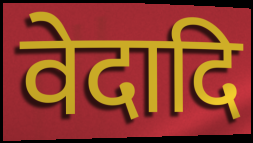
वेदादि